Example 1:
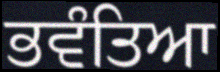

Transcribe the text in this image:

ਭਵੰਤਿਆ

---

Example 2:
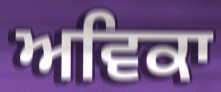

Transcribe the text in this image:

ਅਵਿਕਾ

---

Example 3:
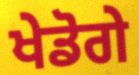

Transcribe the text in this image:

ਖੇਡੋਗੇ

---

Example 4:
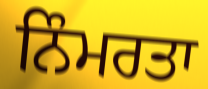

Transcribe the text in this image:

ਨਿੰਮਰਤਾ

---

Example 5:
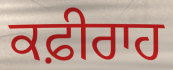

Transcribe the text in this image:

ਕਫ਼ੀਰਾਹ